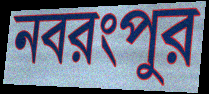
নবরংপুর